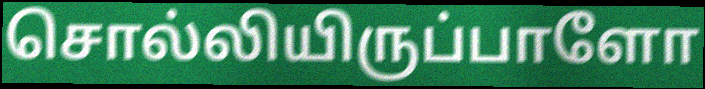
சொல்லியிருப்பாளோ